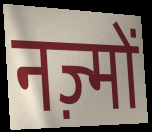
नज़्मों